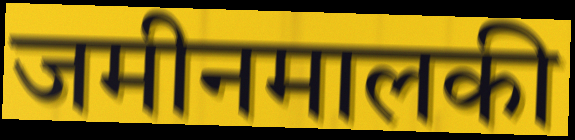
जमीनमालकी